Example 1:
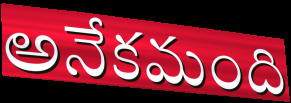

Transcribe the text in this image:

అనేకమంది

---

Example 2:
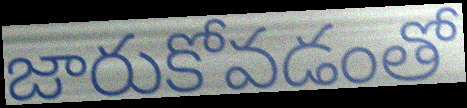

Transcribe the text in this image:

జారుకోవడంతో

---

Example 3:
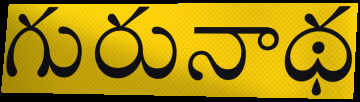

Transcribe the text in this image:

గురునాథ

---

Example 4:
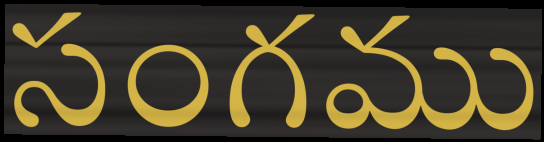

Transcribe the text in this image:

సంగము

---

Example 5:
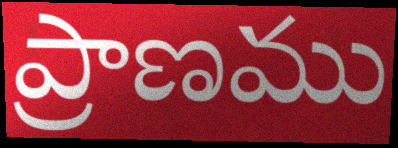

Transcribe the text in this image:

ప్రాణము